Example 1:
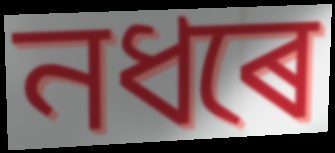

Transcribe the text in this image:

নধৰে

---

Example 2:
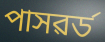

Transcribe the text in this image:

পাসৱৰ্ড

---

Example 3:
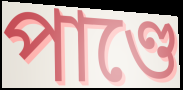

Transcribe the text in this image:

পাণ্ডে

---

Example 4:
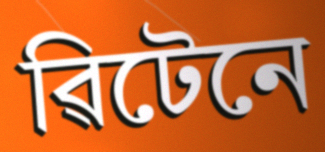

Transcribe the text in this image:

ৱিটেনে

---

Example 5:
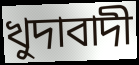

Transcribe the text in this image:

খুদাবাদী